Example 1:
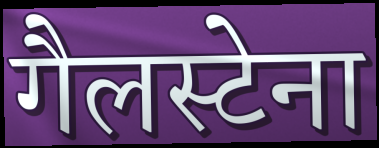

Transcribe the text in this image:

गैलस्टेना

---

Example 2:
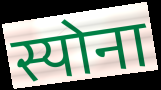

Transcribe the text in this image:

स्योना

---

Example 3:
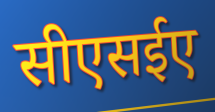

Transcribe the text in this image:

सीएसईए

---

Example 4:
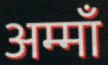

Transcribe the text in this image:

अम्माँ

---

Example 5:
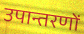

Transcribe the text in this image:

उपान्तरणों